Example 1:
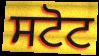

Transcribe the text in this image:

ਸਟੋਟ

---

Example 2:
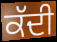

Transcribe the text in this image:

ਕੱਦੀ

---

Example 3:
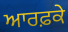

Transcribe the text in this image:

ਆਰਫ਼ਕੇ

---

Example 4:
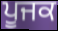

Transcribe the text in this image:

ਪੂਜਕ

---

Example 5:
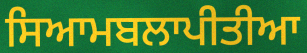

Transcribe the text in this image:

ਸਿਆਮਬਲਾਪੀਤੀਆ